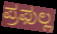
ಪ್ರಫುಲ್ಲ